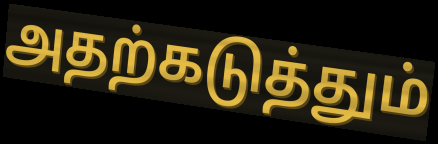
அதற்கடுத்தும்